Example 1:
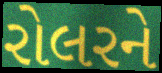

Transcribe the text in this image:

રોલરને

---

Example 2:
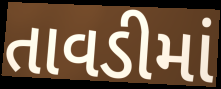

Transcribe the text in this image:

તાવડીમાં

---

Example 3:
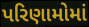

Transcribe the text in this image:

પરિણામોમાં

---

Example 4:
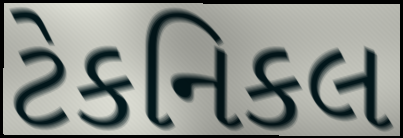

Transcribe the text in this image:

ટેકનિકલ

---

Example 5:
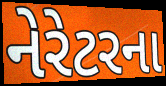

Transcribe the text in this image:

નેરેટરના